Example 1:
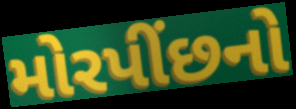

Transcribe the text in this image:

મોરપીંછનો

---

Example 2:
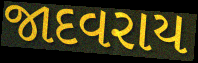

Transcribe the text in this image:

જાદવરાય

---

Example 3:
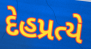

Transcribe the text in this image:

દેહપ્રત્યે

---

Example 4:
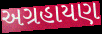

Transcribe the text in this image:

અગ્રહાયણ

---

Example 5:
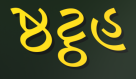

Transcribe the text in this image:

ષ્ઠટ્ઠહ